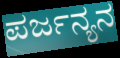
ಪರ್ಜನ್ಯನ